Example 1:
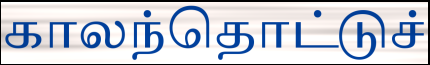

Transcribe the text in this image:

காலந்தொட்டுச்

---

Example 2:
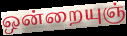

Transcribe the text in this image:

ஒன்றையுஞ்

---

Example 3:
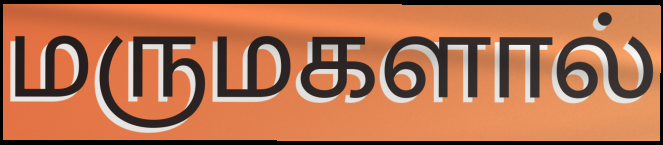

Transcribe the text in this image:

மருமகளால்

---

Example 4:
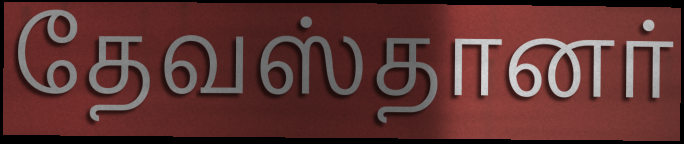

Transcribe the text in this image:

தேவஸ்தானர்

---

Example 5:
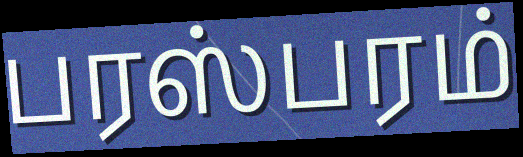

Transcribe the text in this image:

பரஸ்பரம்